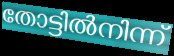
തോട്ടിൽനിന്ന്